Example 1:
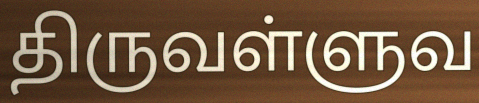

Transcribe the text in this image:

திருவள்ளுவ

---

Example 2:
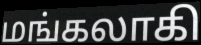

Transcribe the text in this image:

மங்கலாகி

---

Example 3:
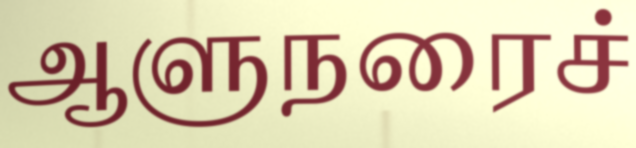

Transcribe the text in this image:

ஆளுநரைச்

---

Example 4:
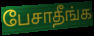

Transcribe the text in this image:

பேசாதீங்க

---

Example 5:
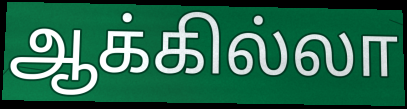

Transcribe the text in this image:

ஆக்கில்லா